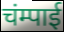
चंम्पाई